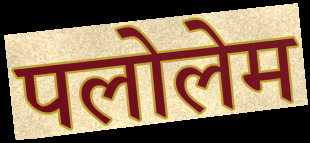
पलोलेम